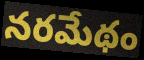
నరమేథం